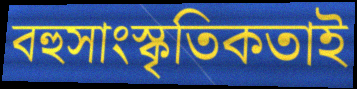
বহুসাংস্কৃতিকতাই